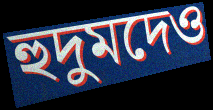
হুদুমদেও